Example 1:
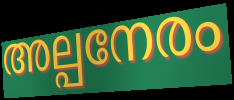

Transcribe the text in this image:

അല്പനേരം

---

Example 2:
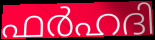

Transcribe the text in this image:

ഫർഹദി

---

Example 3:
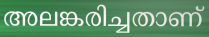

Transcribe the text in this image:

അലങ്കരിച്ചതാണ്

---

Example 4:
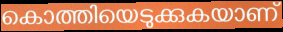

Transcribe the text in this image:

കൊത്തിയെടുക്കുകയാണ്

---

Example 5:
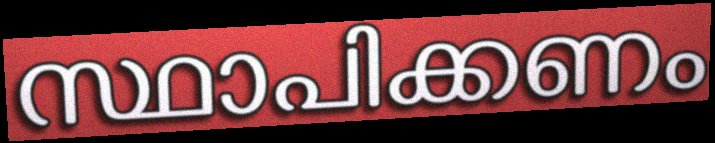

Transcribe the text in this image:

സ്ഥാപിക്കണം